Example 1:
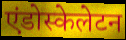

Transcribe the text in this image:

एंडोस्केलेटन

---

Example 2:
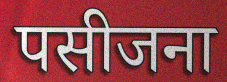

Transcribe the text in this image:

पसीजना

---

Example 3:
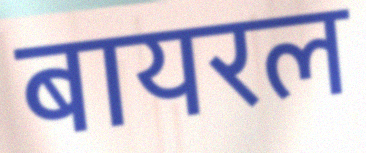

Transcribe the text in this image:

बायरल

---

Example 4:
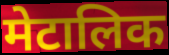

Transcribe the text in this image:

मेटालिक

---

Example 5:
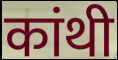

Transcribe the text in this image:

कांथी